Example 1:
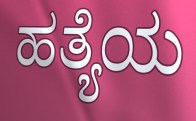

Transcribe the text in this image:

ಹತ್ಯೆಯ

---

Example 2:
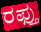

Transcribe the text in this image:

ರಫ್ತು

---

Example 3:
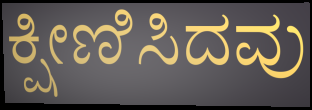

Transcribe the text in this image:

ಕ್ಷೀಣಿಸಿದವು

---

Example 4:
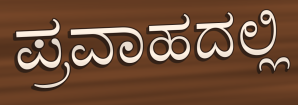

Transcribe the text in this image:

ಪ್ರವಾಹದಲ್ಲಿ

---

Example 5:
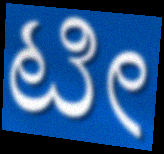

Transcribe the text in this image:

ಟೀ